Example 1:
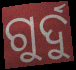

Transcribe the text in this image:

ଗୁର୍ଦୁ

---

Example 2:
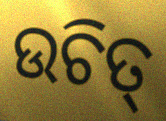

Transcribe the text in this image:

ଉଚିତ୍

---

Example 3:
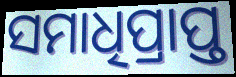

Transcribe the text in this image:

ସମାଧିପ୍ରାପ୍ତ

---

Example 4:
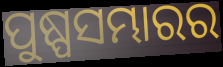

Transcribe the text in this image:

ପୁଷ୍ପସମ୍ଭାରର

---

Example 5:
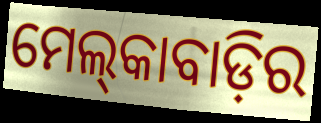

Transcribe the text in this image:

ମେଲ୍‍କାବାଡ଼ିର